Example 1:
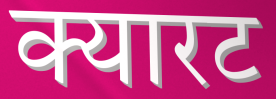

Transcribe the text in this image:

क्यारट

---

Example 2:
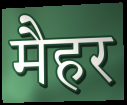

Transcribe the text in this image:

मैहर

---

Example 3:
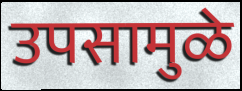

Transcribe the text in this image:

उपसामुळे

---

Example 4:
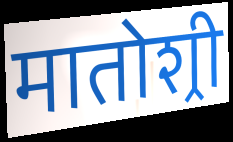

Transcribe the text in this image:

मातोश्री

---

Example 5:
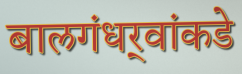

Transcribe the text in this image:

बालगंधर्वांकडे